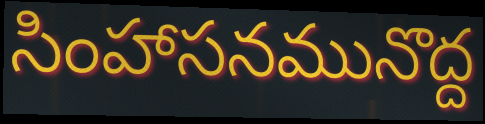
సింహాసనమునొద్ద